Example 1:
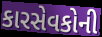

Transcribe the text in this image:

કારસેવકોની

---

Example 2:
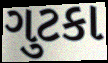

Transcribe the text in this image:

ગુટકા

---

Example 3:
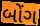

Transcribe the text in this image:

બોંગ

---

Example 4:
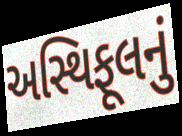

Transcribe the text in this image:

અસ્થિફૂલનું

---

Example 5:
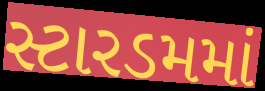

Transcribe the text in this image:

સ્ટારડમમાં